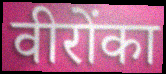
वीरोंका